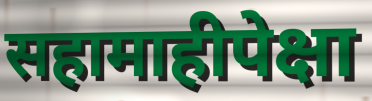
सहामाहीपेक्षा